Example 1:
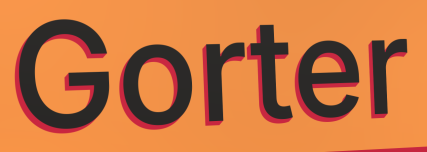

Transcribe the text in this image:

Gorter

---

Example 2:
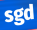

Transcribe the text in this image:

sgd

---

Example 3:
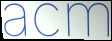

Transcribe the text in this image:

acm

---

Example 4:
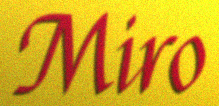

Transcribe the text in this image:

Miro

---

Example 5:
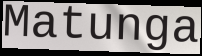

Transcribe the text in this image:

Matunga